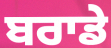
ਬਰਾਡੇ